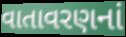
વાતાવરણનાં